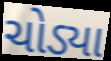
ચોડ્યા